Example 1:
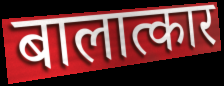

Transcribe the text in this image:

बालात्कार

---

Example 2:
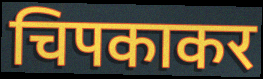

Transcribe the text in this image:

चिपकाकर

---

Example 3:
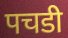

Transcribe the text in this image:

पचडी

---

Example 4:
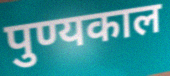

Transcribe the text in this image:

पुण्यकाल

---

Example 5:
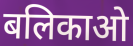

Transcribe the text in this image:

बलिकाओ